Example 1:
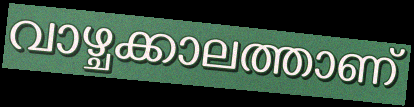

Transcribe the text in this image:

വാഴ്ചക്കാലത്താണ്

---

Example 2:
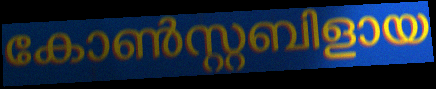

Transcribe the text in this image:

കോൺസ്റ്റബിളായ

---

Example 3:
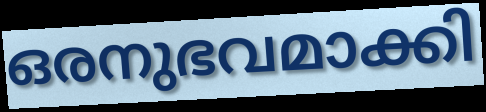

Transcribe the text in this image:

ഒരനുഭവമാക്കി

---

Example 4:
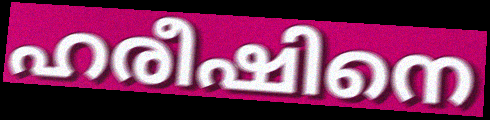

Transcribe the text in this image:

ഹരീഷിനെ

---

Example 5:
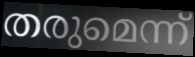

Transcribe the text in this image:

തരുമെന്ന്